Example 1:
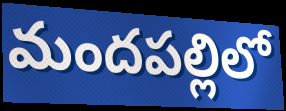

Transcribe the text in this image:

మందపల్లిలో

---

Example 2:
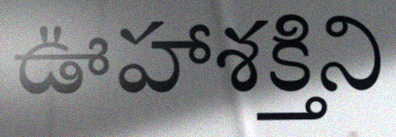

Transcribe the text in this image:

ఊహాశక్తిని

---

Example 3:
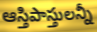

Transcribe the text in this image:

ఆస్తిపాస్తులన్నీ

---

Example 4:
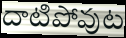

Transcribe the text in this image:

దాటిపోవుట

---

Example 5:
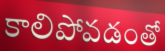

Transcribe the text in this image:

కాలిపోవడంతో